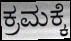
ಕ್ರಮಕ್ಕೆ